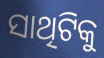
ସାଥିଟିକୁ